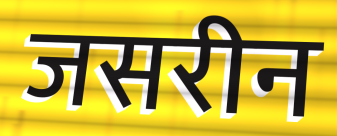
जसरीन